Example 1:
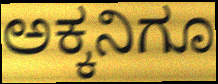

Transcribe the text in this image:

ಅಕ್ಕನಿಗೂ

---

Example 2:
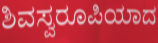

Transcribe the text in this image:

ಶಿವಸ್ವರೂಪಿಯಾದ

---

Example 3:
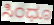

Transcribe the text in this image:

ಸಿಂಧೂ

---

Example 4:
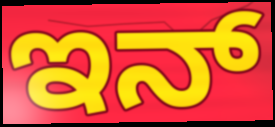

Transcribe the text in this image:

ಇನ್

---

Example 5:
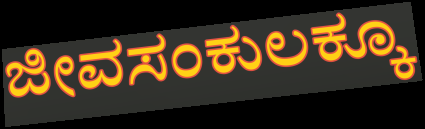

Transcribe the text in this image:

ಜೀವಸಂಕುಲಕ್ಕೂ